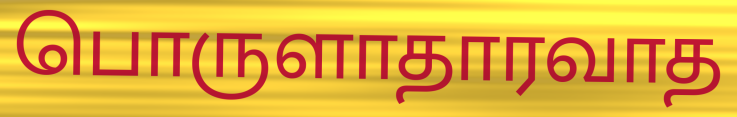
பொருளாதாரவாத